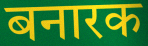
बनारक